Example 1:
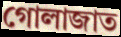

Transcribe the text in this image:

গোলাজাত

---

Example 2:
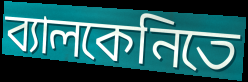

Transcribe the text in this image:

ব্যালকেনিতে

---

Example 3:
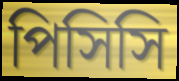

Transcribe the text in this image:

পিসিসি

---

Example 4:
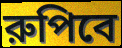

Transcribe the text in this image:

রুপিবে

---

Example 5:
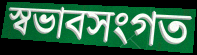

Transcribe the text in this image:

স্বভাবসংগত